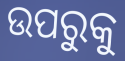
ଉପରୁକୁ